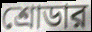
শ্রোডার